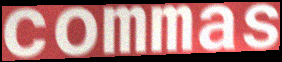
commas